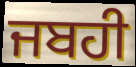
ਜਬਹੀ